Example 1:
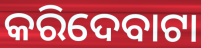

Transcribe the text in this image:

କରିଦେବାଟା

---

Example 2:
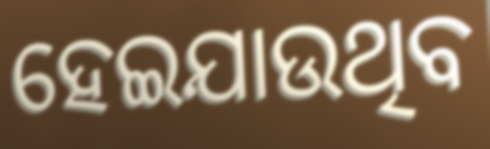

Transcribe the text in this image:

ହେଇଯାଉଥିବ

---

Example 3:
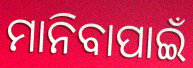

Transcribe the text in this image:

ମାନିବାପାଇଁ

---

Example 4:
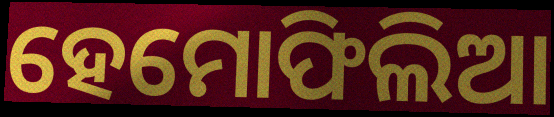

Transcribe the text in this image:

ହେମୋଫିଲିଆ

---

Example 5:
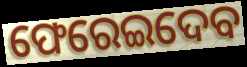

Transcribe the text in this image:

ଫେରେଇଦେବ